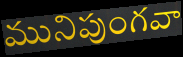
మునిపుంగవా